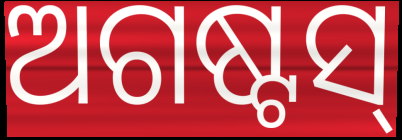
ଅଗଷ୍ଟସ୍